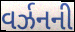
વર્ઝનની